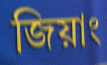
জিয়াং